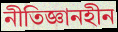
নীতিজ্ঞানহীন